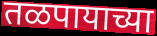
तळपायाच्या